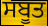
ਸਬੂਤ